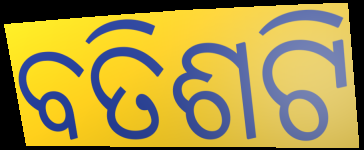
ବତିଶଟି